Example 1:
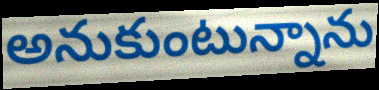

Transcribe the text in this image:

అనుకుంటున్నాను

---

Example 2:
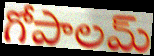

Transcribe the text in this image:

గోపాలమ్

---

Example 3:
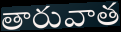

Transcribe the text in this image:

తారువాత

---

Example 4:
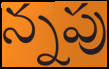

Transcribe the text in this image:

న్నపు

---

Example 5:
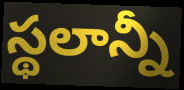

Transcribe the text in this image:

స్థలాన్నీ